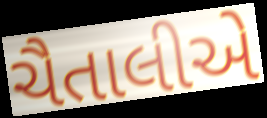
ચૈતાલીએ